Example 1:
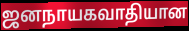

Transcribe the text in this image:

ஜனநாயகவாதியான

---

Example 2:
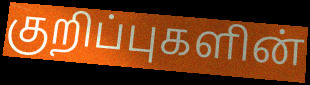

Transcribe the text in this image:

குறிப்புகளின்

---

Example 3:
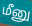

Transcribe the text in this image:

மீனு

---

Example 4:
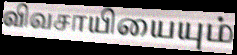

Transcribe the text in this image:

விவசாயியையும்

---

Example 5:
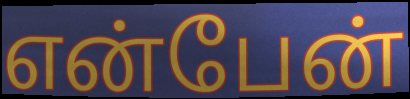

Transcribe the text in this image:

என்பேன்